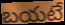
బయటే